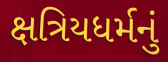
ક્ષત્રિયધર્મનું